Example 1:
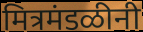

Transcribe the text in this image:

मित्रमंडळीनी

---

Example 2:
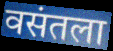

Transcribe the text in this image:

वसंतला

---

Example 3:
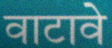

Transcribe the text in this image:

वाटावे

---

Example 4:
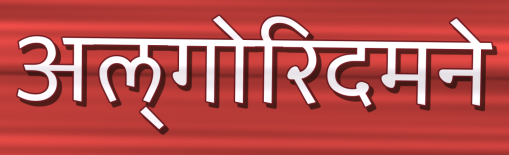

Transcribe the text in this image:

अल्गोरिदमने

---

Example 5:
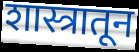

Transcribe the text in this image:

शास्त्रातून